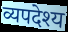
व्यपदेश्य